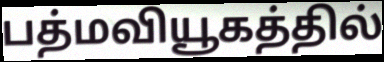
பத்மவியூகத்தில்